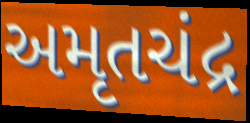
અમૃતચંદ્ર